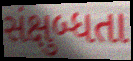
સંક્ષુબ્ધતા